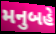
મનુબહે